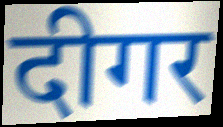
दीगर